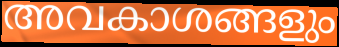
അവകാശങ്ങളും